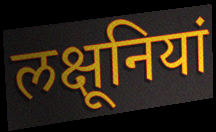
लक्षूनियां